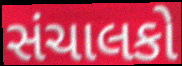
સંચાલકો